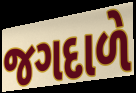
જગદાળે